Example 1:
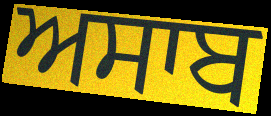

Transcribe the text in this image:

ਅਸਾਬ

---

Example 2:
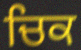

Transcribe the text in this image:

ਚਿਕ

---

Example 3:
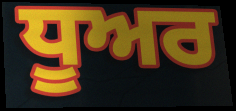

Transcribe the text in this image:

ਧੂਅਰ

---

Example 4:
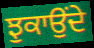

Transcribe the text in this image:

ਝੁਕਾਉਂਦੇ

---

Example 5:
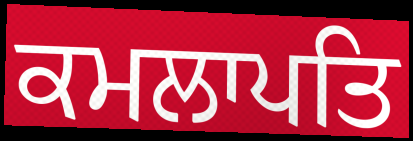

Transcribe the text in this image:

ਕਮਲਾਪਤਿ